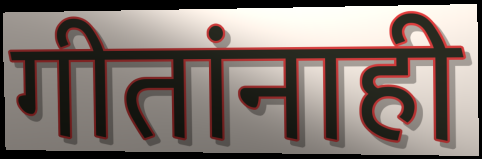
गीतांनाही